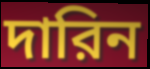
দারিন